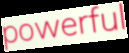
powerful